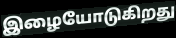
இழையோடுகிறது